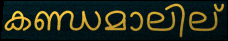
കണ്ഡമാലില്